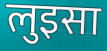
लुइसा